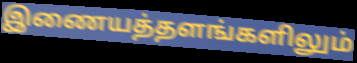
இணையத்தளங்களிலும்